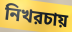
নিখরচায়